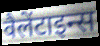
वैलेंटाइन्स